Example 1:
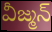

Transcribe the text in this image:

వీజ్మన్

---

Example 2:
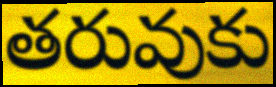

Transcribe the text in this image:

తరువుకు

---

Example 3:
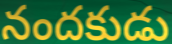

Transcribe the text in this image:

నందకుడు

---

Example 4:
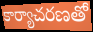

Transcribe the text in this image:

కార్యాచరణతో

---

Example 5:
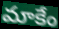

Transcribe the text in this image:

మాకేం